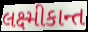
લક્ષ્મીકાન્ત